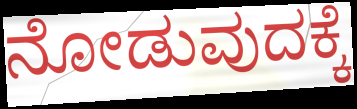
ನೋಡುವುದಕ್ಕೆ